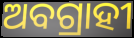
ଅବଗ୍ରାହୀ